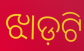
ଝାଡ଼ଟି